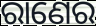
ରାଣେର